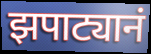
झपाट्यानं